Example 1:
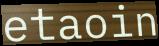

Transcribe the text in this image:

etaoin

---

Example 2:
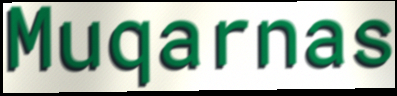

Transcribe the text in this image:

Muqarnas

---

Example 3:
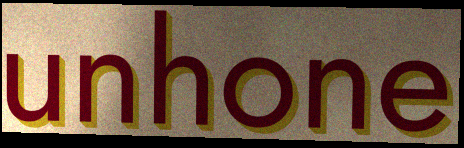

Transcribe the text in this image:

unhone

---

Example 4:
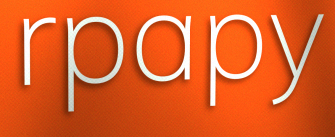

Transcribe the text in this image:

rpapy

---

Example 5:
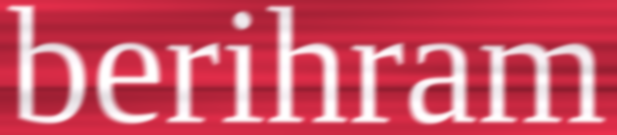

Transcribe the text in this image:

berihram